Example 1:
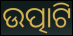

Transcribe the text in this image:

ଉତ୍ପାଟି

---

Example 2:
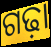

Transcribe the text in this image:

ଗଢ଼ା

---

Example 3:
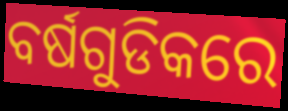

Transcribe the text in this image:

ବର୍ଷଗୁଡିକରେ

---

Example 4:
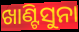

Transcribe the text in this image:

ଖାଣ୍ଟିସୁନା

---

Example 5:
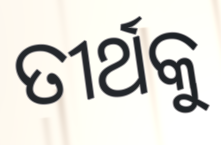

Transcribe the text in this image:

ତୀର୍ଥକୁ